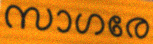
സാഗരേ